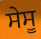
ਸੇਸੂ